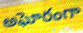
అఘోరంగా